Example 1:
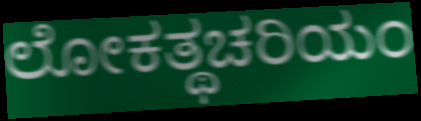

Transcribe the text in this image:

ಲೋಕತ್ಥಚರಿಯಂ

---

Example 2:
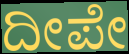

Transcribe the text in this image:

ದೀಪೇ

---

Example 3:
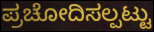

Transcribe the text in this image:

ಪ್ರಚೋದಿಸಲ್ಪಟ್ಟು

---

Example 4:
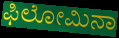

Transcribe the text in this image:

ಫಿಲೋಮಿನಾ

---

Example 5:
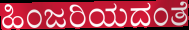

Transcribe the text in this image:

ಹಿಂಜರಿಯದಂತೆ